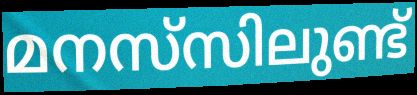
മനസ്‌സിലുണ്ട്